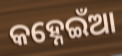
କହ୍ନେଇଁଆ